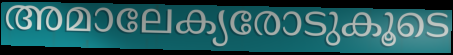
അമാലേക്യരോടുകൂടെ